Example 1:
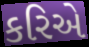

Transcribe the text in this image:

કરિએ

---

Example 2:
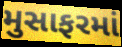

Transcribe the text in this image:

મુસાફરમાં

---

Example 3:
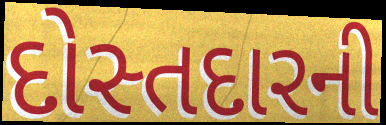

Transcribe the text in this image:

દોસ્તદારની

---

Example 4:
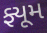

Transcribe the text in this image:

ફ્યૂમ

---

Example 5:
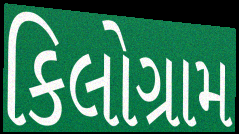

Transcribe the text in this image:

કિલોગ્રામ